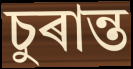
চুৰান্ত